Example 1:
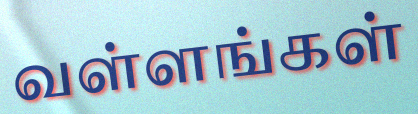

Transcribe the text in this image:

வள்ளங்கள்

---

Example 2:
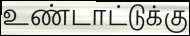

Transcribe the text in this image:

உண்டாட்டுக்கு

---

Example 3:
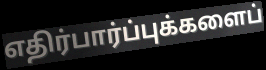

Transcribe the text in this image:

எதிர்பார்ப்புக்களைப்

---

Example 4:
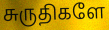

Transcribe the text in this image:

சுருதிகளே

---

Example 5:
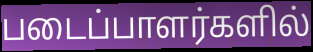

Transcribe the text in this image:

படைப்பாளர்களில்